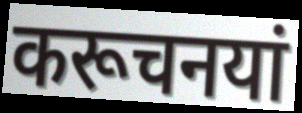
करूचनयां